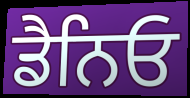
ਡੈਨਿਓ